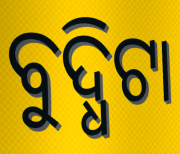
ବୁଦ୍ଧିଟା